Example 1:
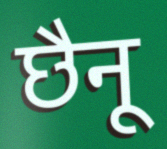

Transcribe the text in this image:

छैनू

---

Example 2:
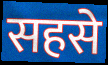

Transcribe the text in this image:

सहसे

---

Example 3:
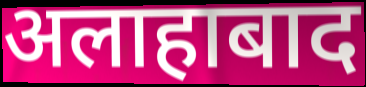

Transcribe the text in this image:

अलाहाबाद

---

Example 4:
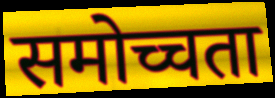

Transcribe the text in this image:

समोच्चता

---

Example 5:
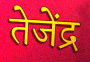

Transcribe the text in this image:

तेजेंद्र